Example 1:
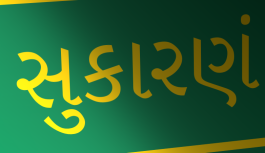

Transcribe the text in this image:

સુકારણં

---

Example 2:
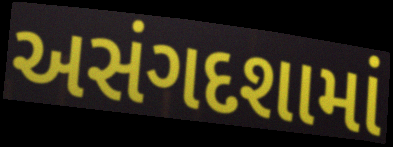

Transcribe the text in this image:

અસંગદશામાં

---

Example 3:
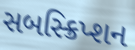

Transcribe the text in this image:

સબસ્ક્રિપ્શન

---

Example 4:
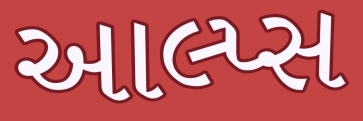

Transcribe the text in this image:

આલ્પ્સ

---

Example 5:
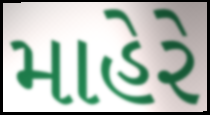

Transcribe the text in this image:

માહેરે